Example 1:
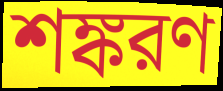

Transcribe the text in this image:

শঙ্করণ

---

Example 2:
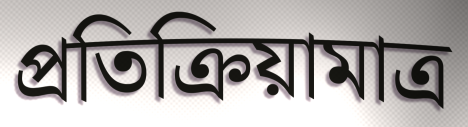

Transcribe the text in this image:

প্রতিক্রিয়ামাত্র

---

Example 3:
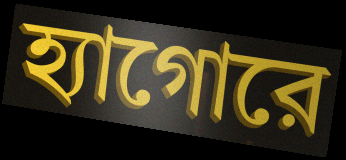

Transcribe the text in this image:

হ্যাগোরে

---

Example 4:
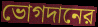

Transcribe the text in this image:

ভোগদানের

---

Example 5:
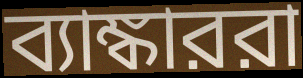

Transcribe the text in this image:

ব্যাঙ্কাররা